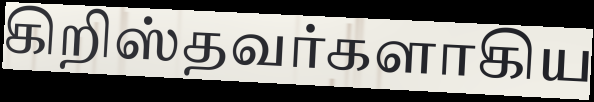
கிறிஸ்தவர்களாகிய